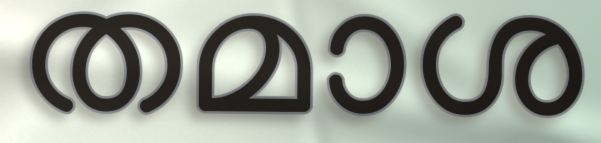
തമാശ